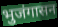
भुजंगासन